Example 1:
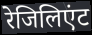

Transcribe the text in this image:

रेजिलिएंट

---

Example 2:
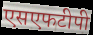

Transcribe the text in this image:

एसएफटीपी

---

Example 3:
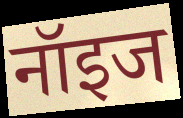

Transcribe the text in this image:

नॉइज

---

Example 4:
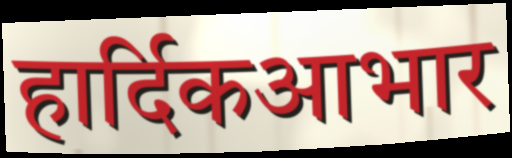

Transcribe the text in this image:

हार्दिकआभार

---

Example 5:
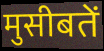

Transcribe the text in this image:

मुसीबतें